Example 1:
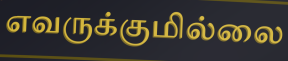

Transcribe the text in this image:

எவருக்குமில்லை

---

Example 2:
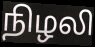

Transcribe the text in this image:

நிழலி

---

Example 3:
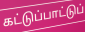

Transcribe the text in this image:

கட்டுப்பாட்டுப்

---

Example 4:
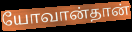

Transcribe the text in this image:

யோவான்தான்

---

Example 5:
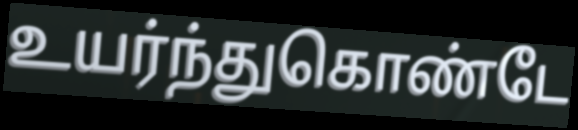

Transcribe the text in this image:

உயர்ந்துகொண்டே